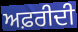
ਅਫ਼ਰੀਦੀ